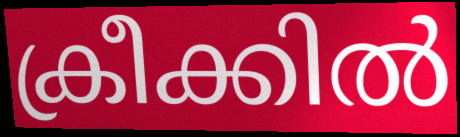
ക്രീക്കിൽ